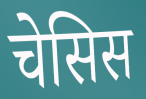
चेसिस